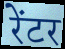
रेंटर